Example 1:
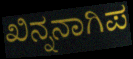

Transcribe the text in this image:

ಖಿನ್ನನಾಗಿಪ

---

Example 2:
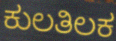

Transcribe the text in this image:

ಕುಲತಿಲಕ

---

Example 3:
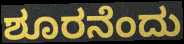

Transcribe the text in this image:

ಶೂರನೆಂದು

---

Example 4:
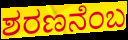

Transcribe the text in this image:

ಶರಣನೆಂಬ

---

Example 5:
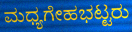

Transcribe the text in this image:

ಮಧ್ಯಗೇಹಭಟ್ಟರು